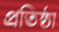
প্ৰতিষ্ঠা